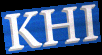
KHI